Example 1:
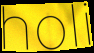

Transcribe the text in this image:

holi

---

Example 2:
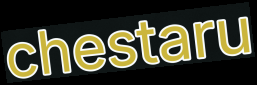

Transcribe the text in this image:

chestaru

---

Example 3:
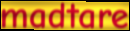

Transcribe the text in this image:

madtare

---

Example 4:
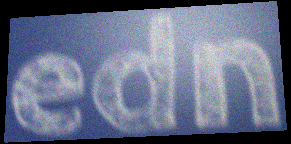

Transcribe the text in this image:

edn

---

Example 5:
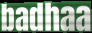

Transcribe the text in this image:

badhaa